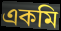
একমি